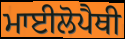
ਮਾਈਲੋਪੈਥੀ